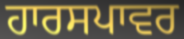
ਹਾਰਸਪਾਵਰ